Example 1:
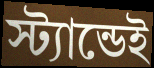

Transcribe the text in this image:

স্ট্যান্ডেই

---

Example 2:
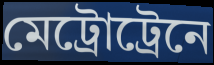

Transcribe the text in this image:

মেট্রোট্রেনে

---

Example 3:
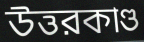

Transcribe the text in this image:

উত্তরকাণ্ড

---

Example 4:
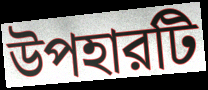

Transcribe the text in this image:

উপহারটি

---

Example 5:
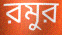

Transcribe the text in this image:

রমুর